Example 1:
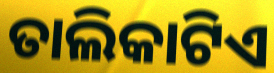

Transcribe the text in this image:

ତାଲିକାଟିଏ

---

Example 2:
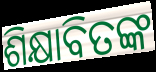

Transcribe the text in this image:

ଶିକ୍ଷାବିତଙ୍କ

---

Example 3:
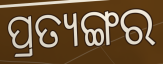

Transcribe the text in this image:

ପ୍ରତ୍ୟଙ୍ଗର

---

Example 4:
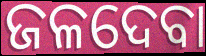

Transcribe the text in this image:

ଜଳଦେବା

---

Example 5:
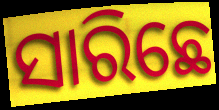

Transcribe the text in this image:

ସାରିଛେ